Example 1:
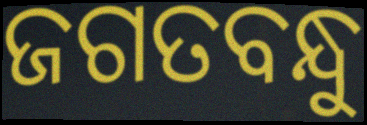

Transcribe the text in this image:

ଜଗତବନ୍ଧୁ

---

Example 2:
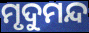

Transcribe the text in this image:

ମୃଦୁମନ୍ଦ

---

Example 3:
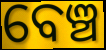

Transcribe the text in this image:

ବେଞ୍ଚ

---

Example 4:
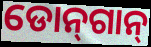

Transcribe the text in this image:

ଡୋନ୍‌ଗାନ୍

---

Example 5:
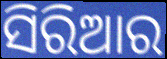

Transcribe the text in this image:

ସିରିଆର